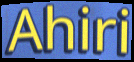
Ahiri